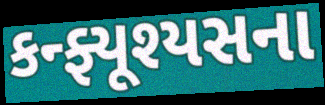
કન્ફ્યૂશ્યસના